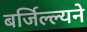
बर्जिल्ल्यने